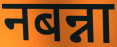
नबन्ना